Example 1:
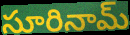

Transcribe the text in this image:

సూరినామ్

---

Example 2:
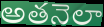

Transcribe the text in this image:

అతనెలా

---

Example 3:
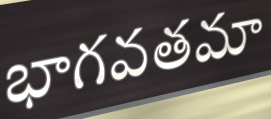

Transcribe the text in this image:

భాగవతమా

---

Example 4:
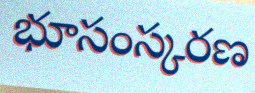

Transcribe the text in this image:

భూసంస్కరణ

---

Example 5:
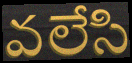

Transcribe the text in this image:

వలేసి